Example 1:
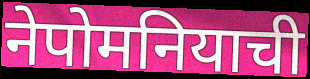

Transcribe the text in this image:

नेपोमनियाची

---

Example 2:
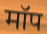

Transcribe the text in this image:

मॉप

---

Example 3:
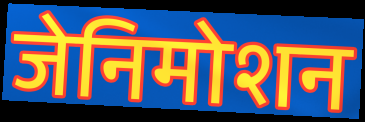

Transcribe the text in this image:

जेनिमोशन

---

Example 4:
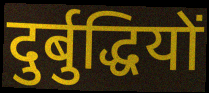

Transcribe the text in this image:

दुर्बुद्धियों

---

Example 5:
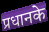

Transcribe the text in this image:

प्रधानके